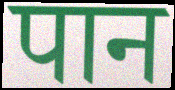
पान